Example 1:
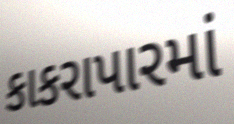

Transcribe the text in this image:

કાકરાપારમાં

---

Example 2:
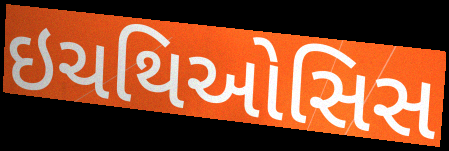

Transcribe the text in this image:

ઇચથિઓસિસ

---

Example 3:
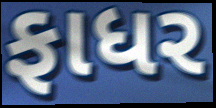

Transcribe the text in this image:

ફાધર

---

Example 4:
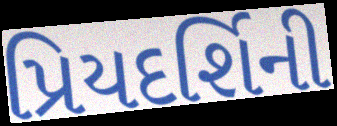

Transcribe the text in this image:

પ્રિયદર્શિની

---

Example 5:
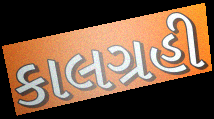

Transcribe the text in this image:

કાલગ્રહી